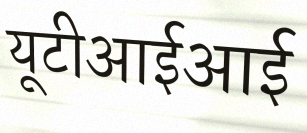
यूटीआईआई